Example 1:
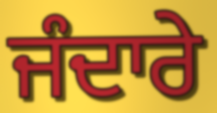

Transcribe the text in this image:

ਜੰਦਾਰੇ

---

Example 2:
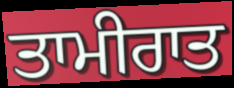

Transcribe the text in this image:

ਤਾਮੀਰਾਤ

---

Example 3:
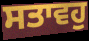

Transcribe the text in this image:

ਸਤਾਵਹੁ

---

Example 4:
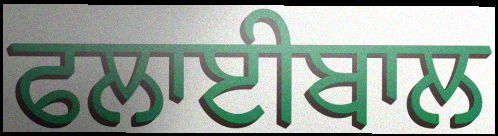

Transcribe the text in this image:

ਫਲਾਈਬਾਲ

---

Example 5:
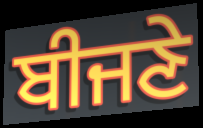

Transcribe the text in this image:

ਬੀਜਣੇ